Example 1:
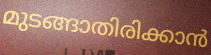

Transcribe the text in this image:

മുടങ്ങാതിരിക്കാൻ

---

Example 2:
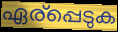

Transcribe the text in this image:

ഏര്പ്പെടുക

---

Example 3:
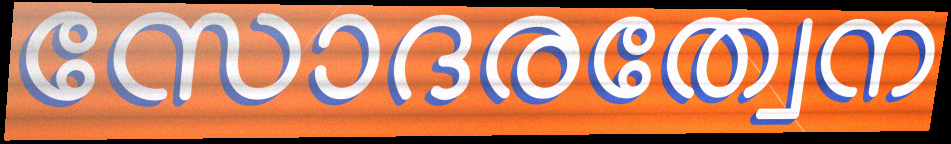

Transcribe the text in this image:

സോദരത്വേന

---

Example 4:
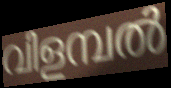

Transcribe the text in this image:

വിളമ്പൽ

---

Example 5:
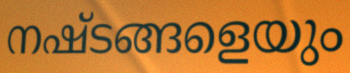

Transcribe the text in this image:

നഷ്ടങ്ങളെയും